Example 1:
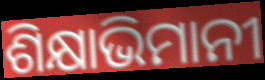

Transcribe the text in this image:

ଶିକ୍ଷାଭିମାନୀ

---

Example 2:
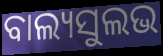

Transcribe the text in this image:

ବାଲ୍ୟସୁଲଭ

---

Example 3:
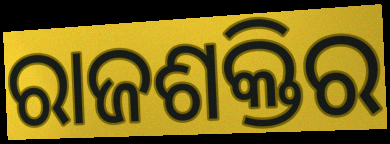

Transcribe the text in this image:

ରାଜଶକ୍ତିର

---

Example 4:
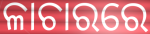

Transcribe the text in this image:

ଳାଚାରରେ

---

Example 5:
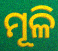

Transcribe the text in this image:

ମୂଳି